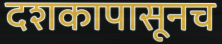
दशकापासूनच